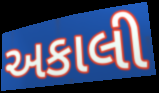
અકાલી